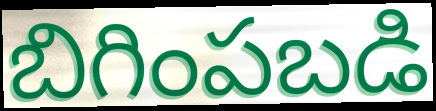
బిగింపబడి